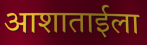
आशाताईला